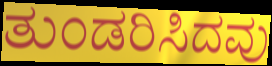
ತುಂಡರಿಸಿದವು